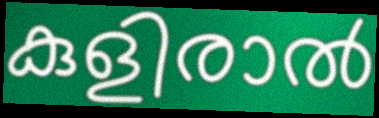
കുളിരാൽ